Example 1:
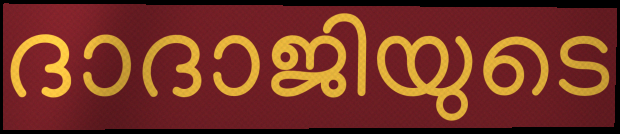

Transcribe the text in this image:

ദാദാജിയുടെ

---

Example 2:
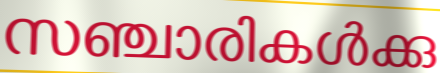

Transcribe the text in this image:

സഞ്ചാരികൾക്കു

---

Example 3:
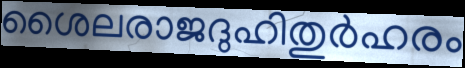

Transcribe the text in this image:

ശൈലരാജദുഹിതുർഹരം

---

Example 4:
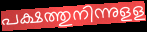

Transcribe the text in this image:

പക്ഷത്തുനിന്നുളള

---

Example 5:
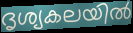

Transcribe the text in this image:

ദൃശ്യകലയിൽ